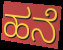
ಹನೆ